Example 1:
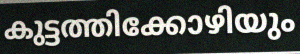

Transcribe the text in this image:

കുട്ടത്തിക്കോഴിയും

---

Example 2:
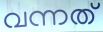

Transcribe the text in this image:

വന്നത്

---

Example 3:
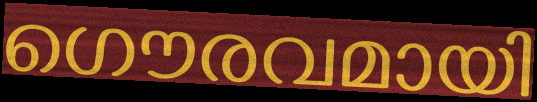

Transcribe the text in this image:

ഗൌരവമായി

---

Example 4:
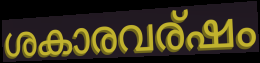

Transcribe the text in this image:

ശകാരവര്ഷം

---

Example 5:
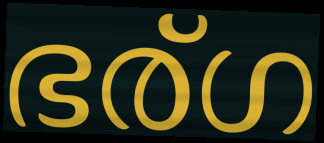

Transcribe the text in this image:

ഭര്ഗ